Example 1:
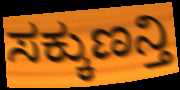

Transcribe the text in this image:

ಸಕ್ಕುಣನ್ತಿ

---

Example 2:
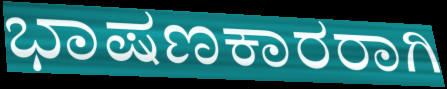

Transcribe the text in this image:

ಭಾಷಣಕಾರರಾಗಿ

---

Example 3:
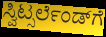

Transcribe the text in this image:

ಸ್ವಿಟ್ಸರ್ಲೆಂಡ್‌ಗೆ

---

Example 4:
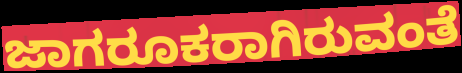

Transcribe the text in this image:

ಜಾಗರೂಕರಾಗಿರುವಂತೆ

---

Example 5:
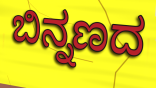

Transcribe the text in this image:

ಬಿನ್ನಣದ